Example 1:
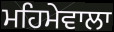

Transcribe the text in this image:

ਮਹਿਮੇਵਾਲਾ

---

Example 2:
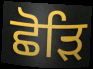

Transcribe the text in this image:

ਛੋੜਿ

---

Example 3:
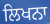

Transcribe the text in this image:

ਲਿਖਨਾ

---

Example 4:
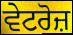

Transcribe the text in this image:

ਵੇਟਰੋਜ਼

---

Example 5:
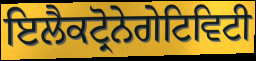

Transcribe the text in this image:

ਇਲੈਕਟ੍ਰੋਨੇਗੇਟਿਵਿਟੀ